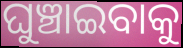
ଘୁଞ୍ଚାଇବାକୁ